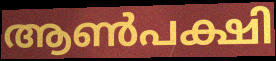
ആൺപക്ഷി